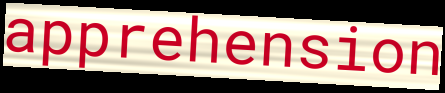
apprehension